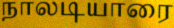
நாலடியாரை